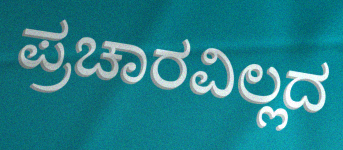
ಪ್ರಚಾರವಿಲ್ಲದ